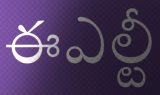
ఈఎల్టీ